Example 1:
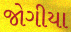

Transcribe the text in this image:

જોગીયા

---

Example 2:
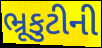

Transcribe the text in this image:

ભ્રૂકુટીની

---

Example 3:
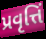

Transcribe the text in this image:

પ્રવૃત્તિં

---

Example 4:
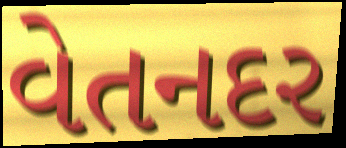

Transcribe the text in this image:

વેતનદર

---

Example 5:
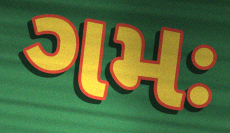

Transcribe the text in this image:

ગમઃ